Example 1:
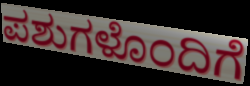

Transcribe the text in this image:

ಪಶುಗಳೊಂದಿಗೆ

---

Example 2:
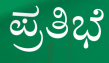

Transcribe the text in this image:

ಪ್ರತಿಭೆ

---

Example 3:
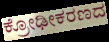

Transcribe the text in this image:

ಕ್ರೋಢೀಕರಣದ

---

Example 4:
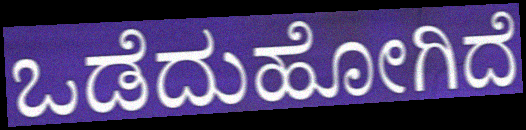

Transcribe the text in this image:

ಒಡೆದುಹೋಗಿದೆ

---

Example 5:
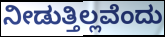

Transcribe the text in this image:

ನೀಡುತ್ತಿಲ್ಲವೆಂದು